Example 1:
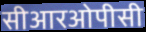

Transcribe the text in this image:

सीआरओपीसी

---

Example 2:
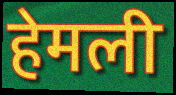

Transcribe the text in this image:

हेमली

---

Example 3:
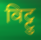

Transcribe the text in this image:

विट्टु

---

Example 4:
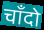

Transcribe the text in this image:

चाँदो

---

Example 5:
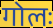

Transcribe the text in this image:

गोलः